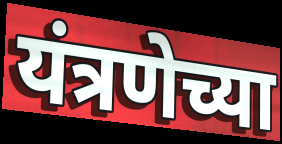
यंत्रणेच्या